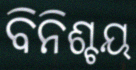
ବିନିଶ୍ଚୟ